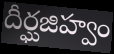
దీర్ఘజిహ్వం